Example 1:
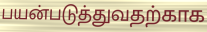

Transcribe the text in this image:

பயன்படுத்துவதற்காக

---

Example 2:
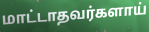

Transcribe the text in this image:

மாட்டாதவர்களாய்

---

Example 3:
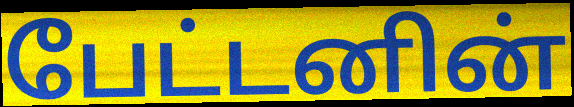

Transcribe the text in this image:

பேட்டனின்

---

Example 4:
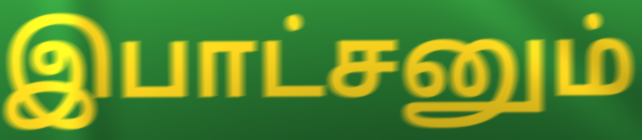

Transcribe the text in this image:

இபாட்சனும்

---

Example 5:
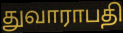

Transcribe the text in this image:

துவாராபதி